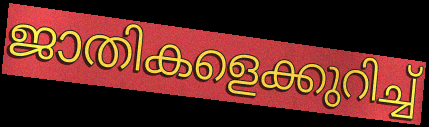
ജാതികളെക്കുറിച്ച്